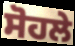
ਸੋਹਲੇ